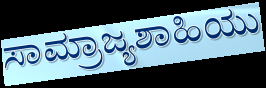
ಸಾಮ್ರಾಜ್ಯಶಾಹಿಯು